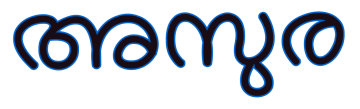
അസുര